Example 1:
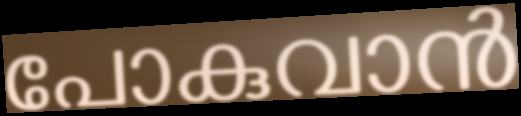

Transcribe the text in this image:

പോകുവാൻ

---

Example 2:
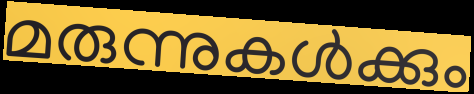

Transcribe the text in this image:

മരുന്നുകൾക്കും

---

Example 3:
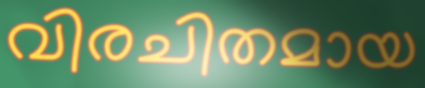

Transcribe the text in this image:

വിരചിതമായ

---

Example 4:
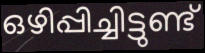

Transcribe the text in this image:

ഒഴിപ്പിച്ചിട്ടുണ്ട്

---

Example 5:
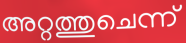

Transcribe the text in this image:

അറ്റത്തുചെന്ന്